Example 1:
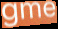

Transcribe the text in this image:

gme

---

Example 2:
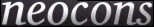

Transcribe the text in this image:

neocons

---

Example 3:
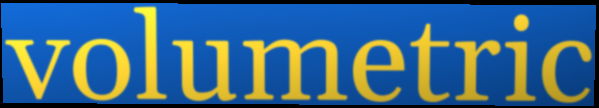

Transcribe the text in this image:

volumetric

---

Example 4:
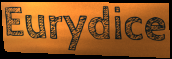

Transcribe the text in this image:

Eurydice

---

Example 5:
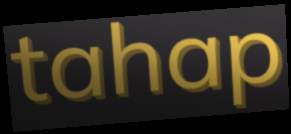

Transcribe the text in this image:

tahap